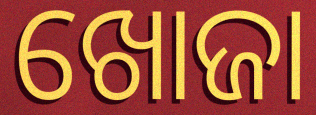
ଖୋଜା